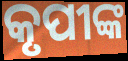
କୃପୀଙ୍କ